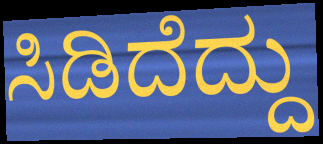
ಸಿಡಿದೆದ್ದು